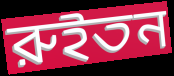
রুইতন